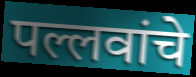
पल्लवांचे